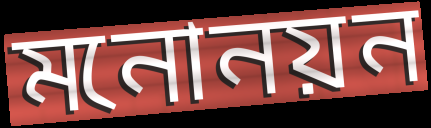
মনোনয়ন